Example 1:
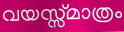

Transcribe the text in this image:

വയസ്സ്മാത്രം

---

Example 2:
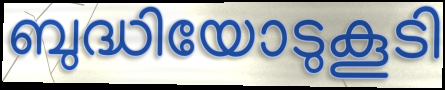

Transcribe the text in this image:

ബുദ്ധിയോടുകൂടി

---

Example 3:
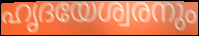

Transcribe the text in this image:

ഹൃദയേശ്വരനും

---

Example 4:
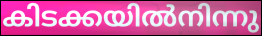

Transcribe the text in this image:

കിടക്കയിൽനിന്നു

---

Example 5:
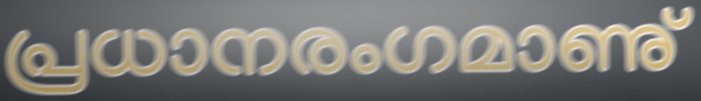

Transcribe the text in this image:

പ്രധാനരംഗമാണു്